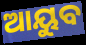
ଆୟୁବ